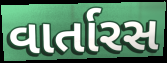
વાર્તારસ